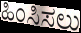
ಹಿಂಸಿಸಲು